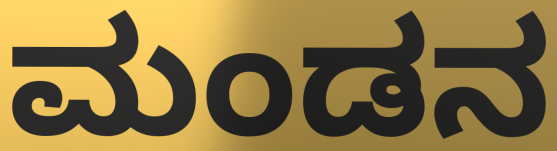
ಮಂಡನ